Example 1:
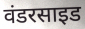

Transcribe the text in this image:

वंडरसाइड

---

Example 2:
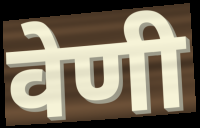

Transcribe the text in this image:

वेणी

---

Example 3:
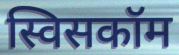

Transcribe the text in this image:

स्विसकॉम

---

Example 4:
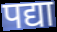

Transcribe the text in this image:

पद्या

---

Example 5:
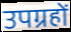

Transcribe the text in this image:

उपग्रहों